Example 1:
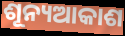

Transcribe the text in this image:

ଶୂନ୍ୟଆକାଶ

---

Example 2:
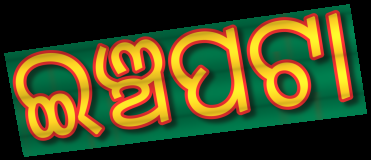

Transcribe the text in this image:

ଇଞ୍ଚପଟା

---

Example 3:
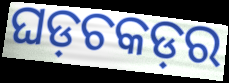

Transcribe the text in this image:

ଘଡ଼ଚକଡ଼ର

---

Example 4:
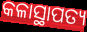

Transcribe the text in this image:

କଳାସ୍ଥାପତ୍ୟ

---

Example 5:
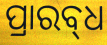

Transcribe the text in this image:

ପ୍ରାରବ୍‍ଧ